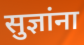
सुज्ञांना